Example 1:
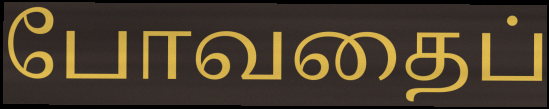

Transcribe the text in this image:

போவதைப்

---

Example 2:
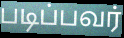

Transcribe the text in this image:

படிப்பவர்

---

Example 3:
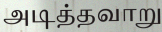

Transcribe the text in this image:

அடித்தவாறு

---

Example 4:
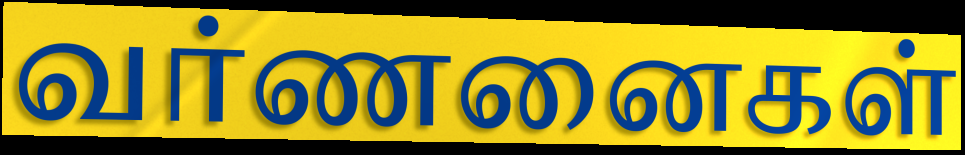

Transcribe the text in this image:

வர்ணனைகள்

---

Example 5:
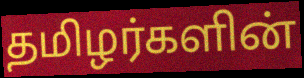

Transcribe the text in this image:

தமிழர்களின்